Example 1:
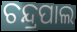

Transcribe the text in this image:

ଚନ୍ଦ୍ରପାଲ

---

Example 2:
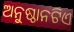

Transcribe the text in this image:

ଅନୁଷ୍ଠାନଟିଏ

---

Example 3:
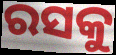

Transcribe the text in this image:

ରସକୁ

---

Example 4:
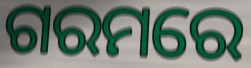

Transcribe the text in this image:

ଗରମରେ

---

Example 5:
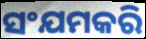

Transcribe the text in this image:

ସଂଯମକରି